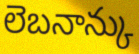
లెబనాన్కు